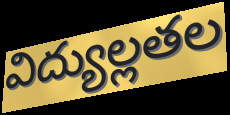
విద్యుల్లతల